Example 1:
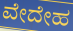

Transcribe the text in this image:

ವೇದೇಹ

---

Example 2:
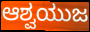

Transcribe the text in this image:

ಆಶ್ವಯುಜ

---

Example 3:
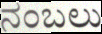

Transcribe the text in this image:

ನಂಬಲು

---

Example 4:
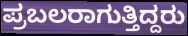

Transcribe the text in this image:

ಪ್ರಬಲರಾಗುತ್ತಿದ್ದರು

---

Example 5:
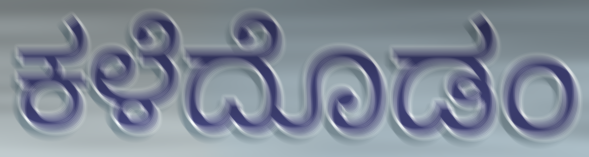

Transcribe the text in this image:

ಕಳೆದೊಡಂ